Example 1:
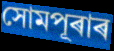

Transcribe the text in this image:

সোমপূৰাৰ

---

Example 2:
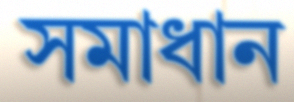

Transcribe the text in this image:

সমাধান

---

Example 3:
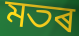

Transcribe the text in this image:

মতৰ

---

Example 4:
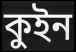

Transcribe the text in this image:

কুইন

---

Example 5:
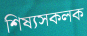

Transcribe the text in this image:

শিষ্যসকলক